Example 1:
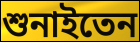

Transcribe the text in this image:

শুনাইতেন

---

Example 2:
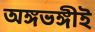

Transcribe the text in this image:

অঙ্গভঙ্গীই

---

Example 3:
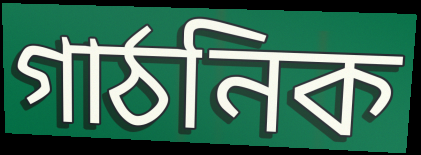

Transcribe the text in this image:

গাঠনিক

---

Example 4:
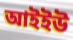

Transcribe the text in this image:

আইইউ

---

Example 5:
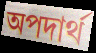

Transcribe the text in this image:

অপদার্থ